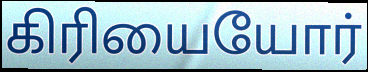
கிரியையோர்